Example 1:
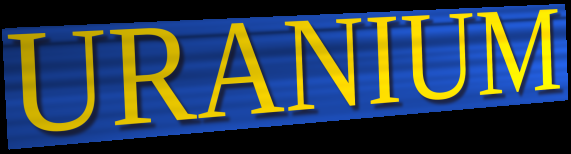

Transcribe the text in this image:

URANIUM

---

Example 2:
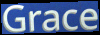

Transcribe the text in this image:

Grace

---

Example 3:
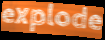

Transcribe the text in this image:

explode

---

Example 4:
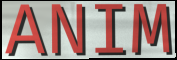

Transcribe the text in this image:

ANIM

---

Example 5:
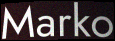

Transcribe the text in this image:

Marko